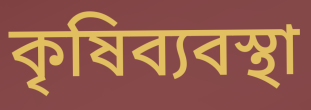
কৃষিব্যবস্থা